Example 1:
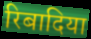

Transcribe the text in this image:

रिबादिया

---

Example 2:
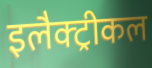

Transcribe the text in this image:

इलैक्ट्रीकल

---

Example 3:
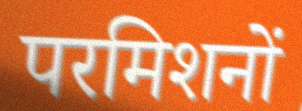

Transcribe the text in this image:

परमिशनों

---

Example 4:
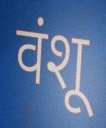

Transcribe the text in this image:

वंशू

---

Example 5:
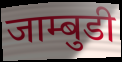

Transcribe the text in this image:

जाम्बुडी